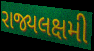
રાજ્યલક્ષમી